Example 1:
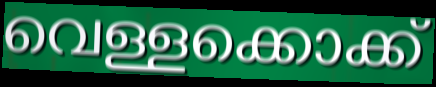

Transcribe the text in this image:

വെള്ളക്കൊക്ക്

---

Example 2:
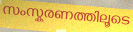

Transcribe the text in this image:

സംസ്കരണത്തിലൂടെ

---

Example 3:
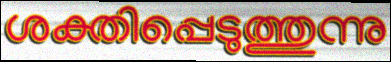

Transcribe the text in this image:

ശക്തിപ്പെടുത്തുന്നു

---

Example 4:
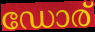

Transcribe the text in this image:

ഡോര്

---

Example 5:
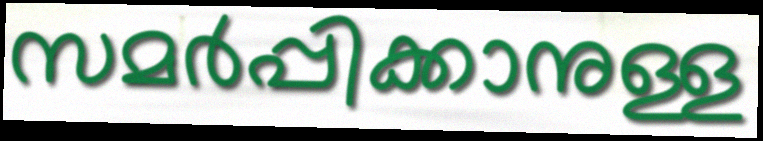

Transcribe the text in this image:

സമർപ്പിക്കാനുള്ള